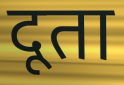
दूता